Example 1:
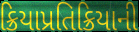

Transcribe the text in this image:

ક્રિયાપ્રતિક્રિયાની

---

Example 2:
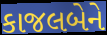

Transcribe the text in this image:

કાજલબેને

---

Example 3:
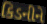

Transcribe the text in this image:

કિડનીને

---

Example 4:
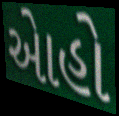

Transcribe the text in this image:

એાહો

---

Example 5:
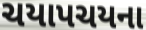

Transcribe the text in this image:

ચયાપચયના